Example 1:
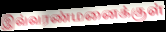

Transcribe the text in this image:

இவ்வரண்மனைக்குள்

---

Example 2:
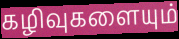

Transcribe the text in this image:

கழிவுகளையும்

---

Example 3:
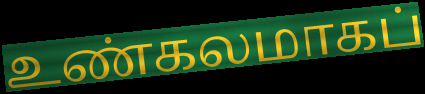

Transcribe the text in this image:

உண்கலமாகப்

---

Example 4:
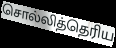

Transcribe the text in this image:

சொல்லித்தெரிய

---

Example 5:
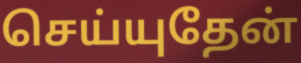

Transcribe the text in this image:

செய்யுதேன்